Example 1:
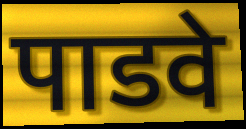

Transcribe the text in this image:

पाडवे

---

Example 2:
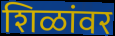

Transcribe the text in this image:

शिळांवर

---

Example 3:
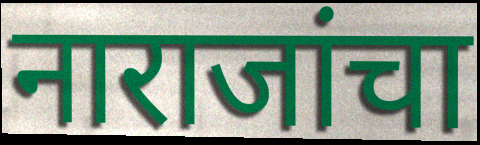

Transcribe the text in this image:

नाराजांचा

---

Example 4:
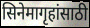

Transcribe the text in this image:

सिनेमागृहांसाठी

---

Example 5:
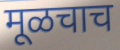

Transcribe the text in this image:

मूळचाच